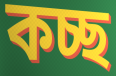
কচ্ছ